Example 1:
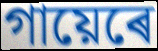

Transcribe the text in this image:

গায়েৰে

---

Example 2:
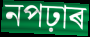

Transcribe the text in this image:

নপঢ়াৰ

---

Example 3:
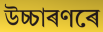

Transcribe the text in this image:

উচ্চাৰণৰে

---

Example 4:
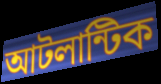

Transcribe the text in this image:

আটলান্টিক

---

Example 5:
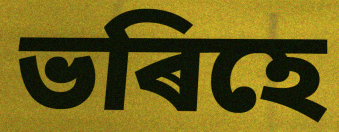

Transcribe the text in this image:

ভৰিহে